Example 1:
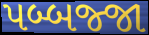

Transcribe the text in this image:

પબ્બજ્જા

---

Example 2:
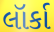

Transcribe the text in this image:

લૉર્કા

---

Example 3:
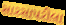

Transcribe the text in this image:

સારસાપરીલા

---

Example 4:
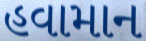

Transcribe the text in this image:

હવામાન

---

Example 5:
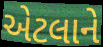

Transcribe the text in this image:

એટલાને